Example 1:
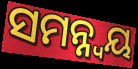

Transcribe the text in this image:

ସମନ୍ନ୍ୱୟ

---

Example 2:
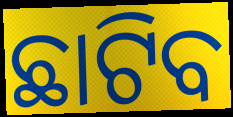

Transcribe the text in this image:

ଛାଟିବ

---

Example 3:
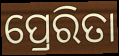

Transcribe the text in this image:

ପ୍ରେରିତା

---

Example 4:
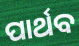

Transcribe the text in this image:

ପାର୍ଥବ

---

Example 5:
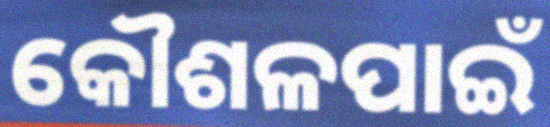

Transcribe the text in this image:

କୌଶଳପାଇଁ